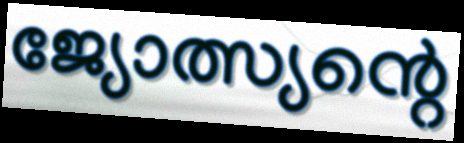
ജ്യോത്സ്യന്റെ